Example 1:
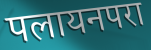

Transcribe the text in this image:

पलायनपरा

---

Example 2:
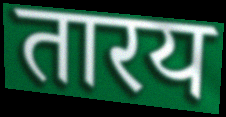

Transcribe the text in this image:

तारय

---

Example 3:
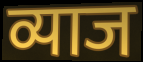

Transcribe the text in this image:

व्याज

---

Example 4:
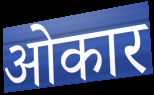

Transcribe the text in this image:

ओकार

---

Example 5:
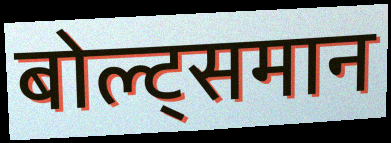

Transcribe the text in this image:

बोल्ट्समान